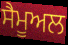
ਸੈਮੂਅਲ